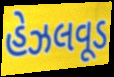
હેઝલવૂડ